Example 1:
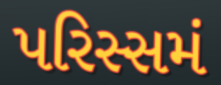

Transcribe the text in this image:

પરિસ્સમં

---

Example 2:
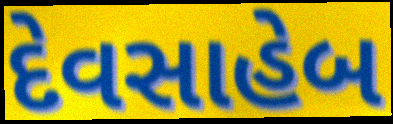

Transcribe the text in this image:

દેવસાહેબ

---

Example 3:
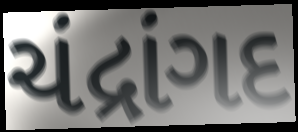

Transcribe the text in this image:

ચંદ્રાંગદ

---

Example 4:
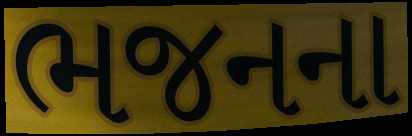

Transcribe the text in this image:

ભજનના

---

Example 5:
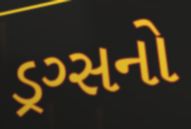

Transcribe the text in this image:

ડ્રગ્સનો